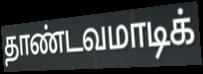
தாண்டவமாடிக்